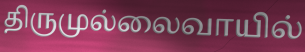
திருமுல்லைவாயில்